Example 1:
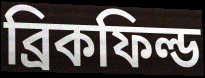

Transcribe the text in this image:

ব্রিকফিল্ড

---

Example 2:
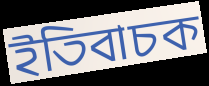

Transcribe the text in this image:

ইতিবাচক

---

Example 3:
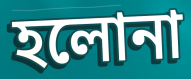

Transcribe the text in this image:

হলোনা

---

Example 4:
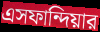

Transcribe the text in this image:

এসফান্দিয়ার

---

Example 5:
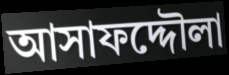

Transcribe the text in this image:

আসাফদ্দৌলা